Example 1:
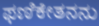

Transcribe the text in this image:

ಫಣಿಕೇತನನು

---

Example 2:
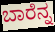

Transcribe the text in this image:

ಬಾರೆನ್ನ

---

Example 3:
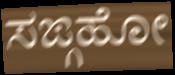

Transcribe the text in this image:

ಸಙ್ಗಹೋ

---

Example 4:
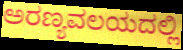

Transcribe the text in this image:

ಅರಣ್ಯವಲಯದಲ್ಲಿ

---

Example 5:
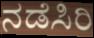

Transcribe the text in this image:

ನಡೆಸಿರಿ